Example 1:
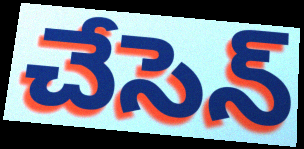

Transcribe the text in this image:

చేసెన్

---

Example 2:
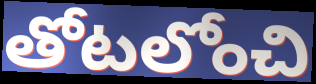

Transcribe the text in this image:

తోటలోంచి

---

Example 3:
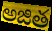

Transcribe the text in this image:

అజిత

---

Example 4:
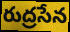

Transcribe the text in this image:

రుద్రసేన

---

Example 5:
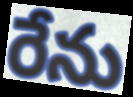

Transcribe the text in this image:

రేను